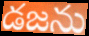
డజను